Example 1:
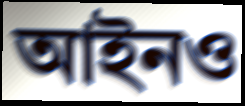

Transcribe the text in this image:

আইনও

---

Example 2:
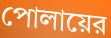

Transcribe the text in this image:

পোলায়ের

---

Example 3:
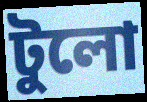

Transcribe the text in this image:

টুলো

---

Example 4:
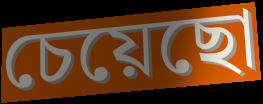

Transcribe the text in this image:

চেয়েছো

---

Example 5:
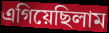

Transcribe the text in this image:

এগিয়েছিলাম